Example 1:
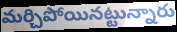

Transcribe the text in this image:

మర్చిపోయినట్టున్నారు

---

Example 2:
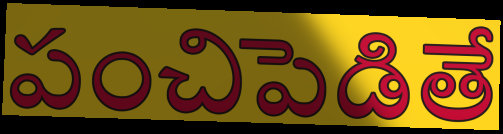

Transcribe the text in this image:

పంచిపెడితే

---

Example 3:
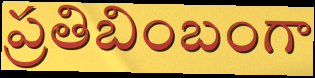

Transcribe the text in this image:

ప్రతిబింబంగా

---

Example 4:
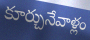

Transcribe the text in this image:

కూర్చునేవాళ్లం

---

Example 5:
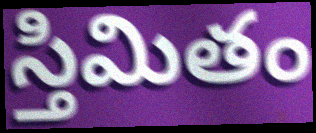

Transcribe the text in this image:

స్తిమితం